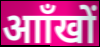
आाँखों